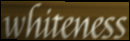
whiteness